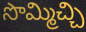
సొమ్మిచ్చి